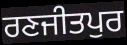
ਰਣਜੀਤਪੁਰ